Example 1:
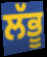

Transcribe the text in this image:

ਲੱਭੂ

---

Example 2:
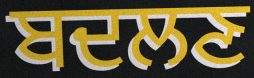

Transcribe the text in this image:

ਬਦਲਣ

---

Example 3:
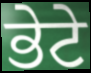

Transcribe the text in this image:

ਭੇਟੇ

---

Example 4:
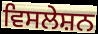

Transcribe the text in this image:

ਵਿਸਲੇਸ਼ਨ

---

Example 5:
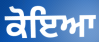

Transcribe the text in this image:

ਕੋਇਆ